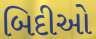
બિદીઓ